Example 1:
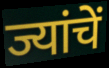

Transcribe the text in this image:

ज्यांचें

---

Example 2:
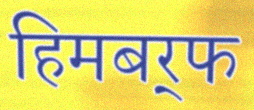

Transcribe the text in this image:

हिमबर्फ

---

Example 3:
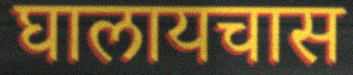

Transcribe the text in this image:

घालायचास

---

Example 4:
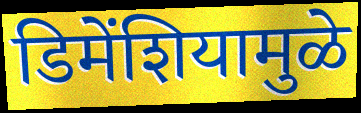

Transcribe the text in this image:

डिमेंशियामुळे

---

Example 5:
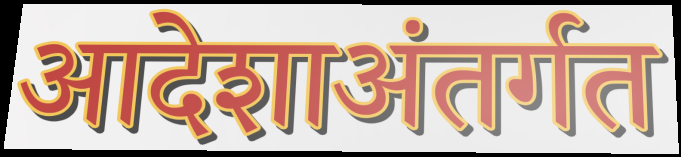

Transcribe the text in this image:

आदेशाअंतर्गत